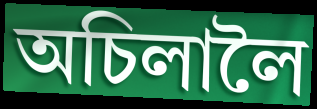
অচিলালৈ